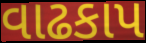
વાઢકાપ